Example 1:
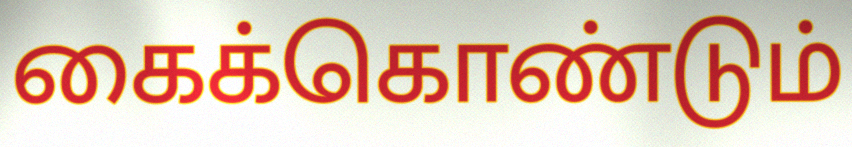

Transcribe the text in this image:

கைக்கொண்டும்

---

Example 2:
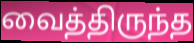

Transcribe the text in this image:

வைத்திருந்த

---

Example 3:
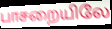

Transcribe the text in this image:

பாசறையிலே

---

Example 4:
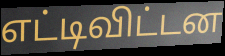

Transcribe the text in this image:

எட்டிவிட்டன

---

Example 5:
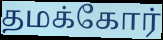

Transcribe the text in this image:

தமக்கோர்